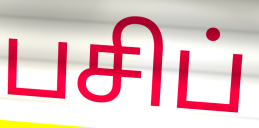
பசிப்